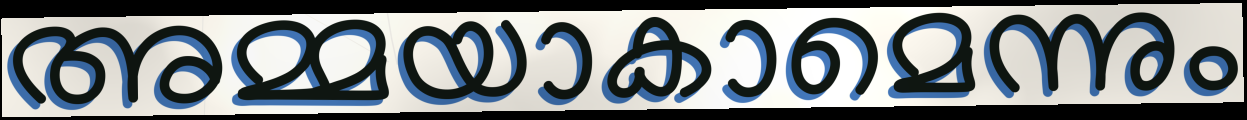
അമ്മയാകാമെന്നും